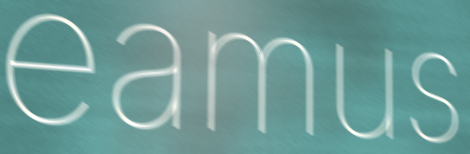
eamus